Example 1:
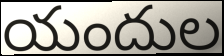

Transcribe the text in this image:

యందుల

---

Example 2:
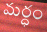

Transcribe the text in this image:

మర్ధం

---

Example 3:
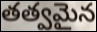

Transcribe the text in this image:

తత్వమైన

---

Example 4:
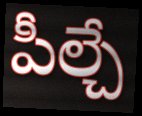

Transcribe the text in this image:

పీల్చే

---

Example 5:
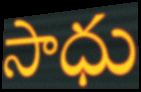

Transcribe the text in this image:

సాధు